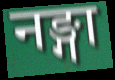
नङ्गा